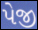
પેજી